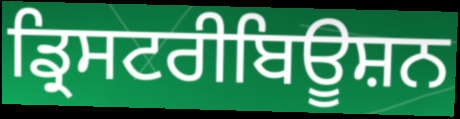
ਡ੍ਰਿਸਟਰੀਬਿਊਸ਼ਨ